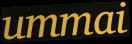
ummai